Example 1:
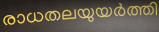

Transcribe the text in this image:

രാധതലയുയർത്തി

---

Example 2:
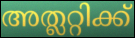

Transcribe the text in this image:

അത്ലറ്റിക്ക്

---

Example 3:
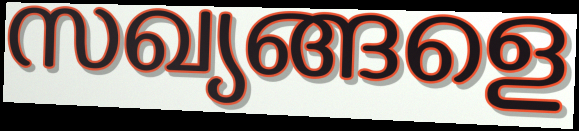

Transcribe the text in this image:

സഖ്യങ്ങളെ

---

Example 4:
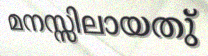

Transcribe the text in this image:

മനസ്സിലായതു്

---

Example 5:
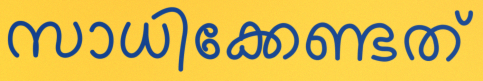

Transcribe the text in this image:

സാധിക്കേണ്ടത്